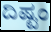
ದಿಷ್ಟಂ